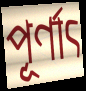
পূর্ণাৎ